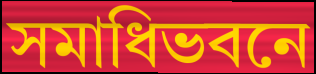
সমাধিভবনে